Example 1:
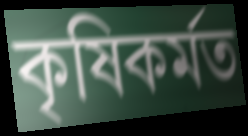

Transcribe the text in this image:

কৃষিকৰ্মত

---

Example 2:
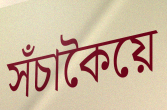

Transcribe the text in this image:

সঁচাকৈয়ে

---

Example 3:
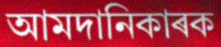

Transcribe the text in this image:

আমদানিকাৰক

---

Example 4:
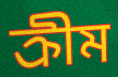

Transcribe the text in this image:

ক্ৰীম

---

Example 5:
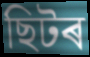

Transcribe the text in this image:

ছিটৰ